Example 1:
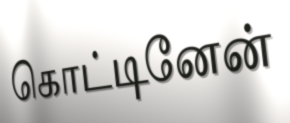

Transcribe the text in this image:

கொட்டினேன்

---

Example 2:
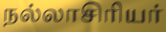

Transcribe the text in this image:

நல்லாசிரியர்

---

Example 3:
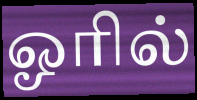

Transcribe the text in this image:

ஓரில்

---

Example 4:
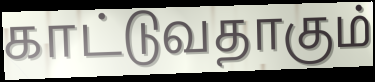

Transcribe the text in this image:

காட்டுவதாகும்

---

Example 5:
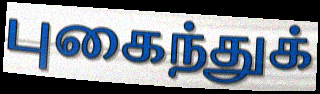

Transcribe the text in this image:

புகைந்துக்